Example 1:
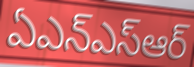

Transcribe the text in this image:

ఏఎన్ఎస్ఆర్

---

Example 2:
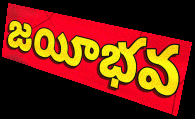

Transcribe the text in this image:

జయీభవ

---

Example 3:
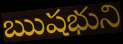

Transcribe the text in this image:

ఋషభుని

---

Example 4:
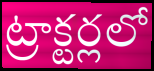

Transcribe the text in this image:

ట్రాక్టర్లలో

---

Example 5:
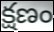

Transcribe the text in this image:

క్షణం